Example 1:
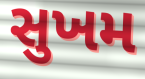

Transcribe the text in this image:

સુખમ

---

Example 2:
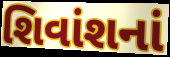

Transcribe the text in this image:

શિવાંશનાં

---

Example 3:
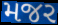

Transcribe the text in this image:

મજર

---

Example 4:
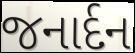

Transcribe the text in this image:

જનાર્દન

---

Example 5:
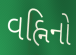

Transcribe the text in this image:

વહ્નિનો